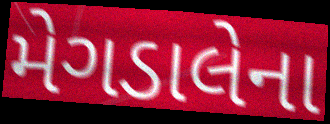
મેગડાલેના